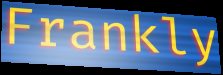
Frankly